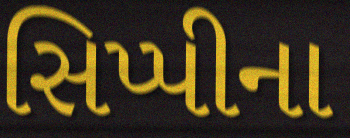
સિપ્પીના